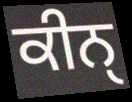
ਕੀਨੑ